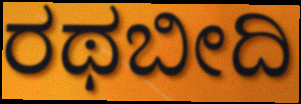
ರಥಬೀದಿ